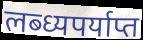
लब्ध्यपर्याप्त